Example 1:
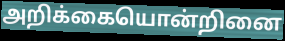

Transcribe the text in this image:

அறிக்கையொன்றினை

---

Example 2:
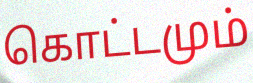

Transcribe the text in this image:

கொட்டமும்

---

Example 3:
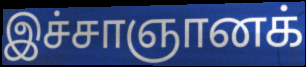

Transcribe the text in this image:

இச்சாஞானக்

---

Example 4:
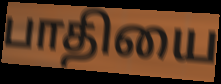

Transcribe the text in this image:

பாதியை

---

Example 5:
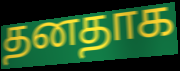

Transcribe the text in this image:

தனதாக